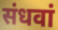
संधवां